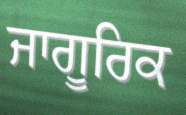
ਜਾਗੂਰਿਕ